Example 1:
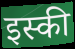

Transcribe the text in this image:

इस्की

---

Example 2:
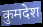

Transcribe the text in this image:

कुमदेश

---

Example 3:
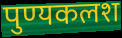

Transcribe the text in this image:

पुण्यकलश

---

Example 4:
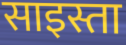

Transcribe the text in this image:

साइस्ता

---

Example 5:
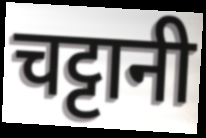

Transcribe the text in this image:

चट्टानी